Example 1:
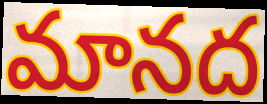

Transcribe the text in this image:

మానద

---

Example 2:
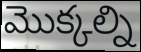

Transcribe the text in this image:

మొక్కల్ని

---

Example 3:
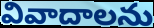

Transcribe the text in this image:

వివాదాలను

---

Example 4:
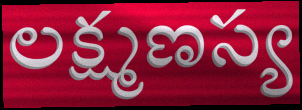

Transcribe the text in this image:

లక్ష్మణస్య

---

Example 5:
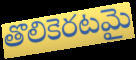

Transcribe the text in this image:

తొలికెరటమై